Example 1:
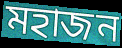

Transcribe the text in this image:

মহাজন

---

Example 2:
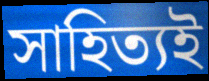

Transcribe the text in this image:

সাহিত্যই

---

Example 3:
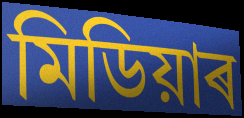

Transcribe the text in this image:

মিডিয়াৰ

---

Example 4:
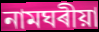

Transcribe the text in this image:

নামঘৰীয়া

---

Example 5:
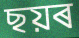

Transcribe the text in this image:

ছয়ৰ